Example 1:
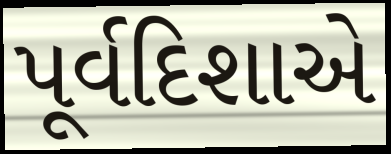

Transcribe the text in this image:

પૂર્વદિશાએ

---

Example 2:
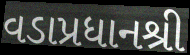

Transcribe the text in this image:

વડાપ્રધાનશ્રી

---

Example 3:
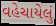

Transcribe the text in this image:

વહેચાયેલું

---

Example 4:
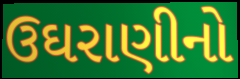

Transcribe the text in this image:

ઉઘરાણીનો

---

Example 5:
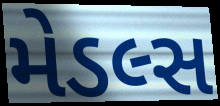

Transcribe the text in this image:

મેડલ્સ